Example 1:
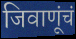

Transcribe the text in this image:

जिवाणूंचं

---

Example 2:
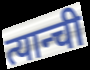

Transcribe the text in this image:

त्यान्ची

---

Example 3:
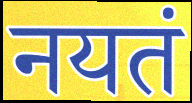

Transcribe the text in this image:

नयतं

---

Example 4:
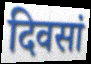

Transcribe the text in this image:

दिवसां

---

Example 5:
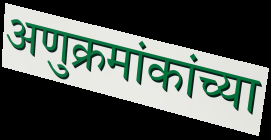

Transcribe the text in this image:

अणुक्रमांकांच्या